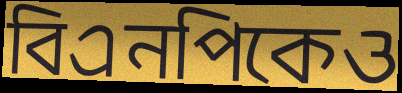
বিএনপিকেও